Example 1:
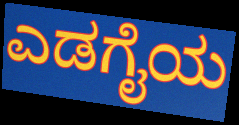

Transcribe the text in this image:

ಎಡಗೈಯ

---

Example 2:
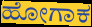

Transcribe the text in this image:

ಹೋಗಾಕ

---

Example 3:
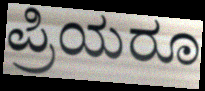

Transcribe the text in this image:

ಪ್ರಿಯರೂ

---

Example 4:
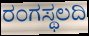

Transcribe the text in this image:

ರಂಗಸ್ಥಲದಿ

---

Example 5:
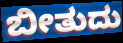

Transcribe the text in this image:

ಬೀತುದು